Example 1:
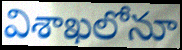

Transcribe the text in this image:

విశాఖలోనూ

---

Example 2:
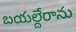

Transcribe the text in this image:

బయల్దేరాను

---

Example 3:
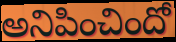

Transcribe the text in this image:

అనిపించిందో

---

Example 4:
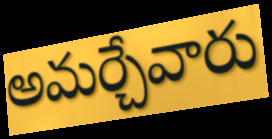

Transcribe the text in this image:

అమర్చేవారు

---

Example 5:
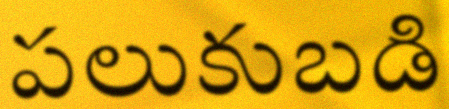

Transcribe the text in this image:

పలుకుబడి